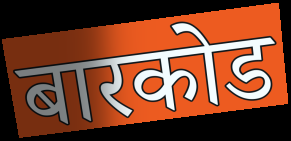
बारकोड